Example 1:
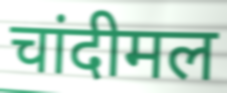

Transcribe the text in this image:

चांदीमल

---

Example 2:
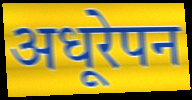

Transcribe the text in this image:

अधूरेपन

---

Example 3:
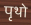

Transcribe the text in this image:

पृथो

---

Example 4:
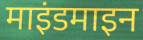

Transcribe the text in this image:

माइंडमाइन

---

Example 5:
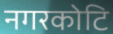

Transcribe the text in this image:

नगरकोटि